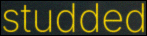
studded